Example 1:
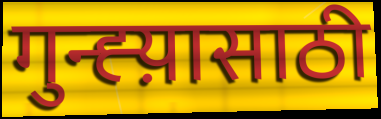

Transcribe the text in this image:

गुन्ह्य़ासाठी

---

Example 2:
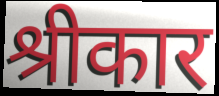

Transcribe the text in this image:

श्रीकार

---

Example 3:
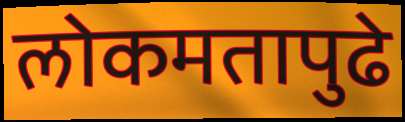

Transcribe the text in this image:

लोकमतापुढे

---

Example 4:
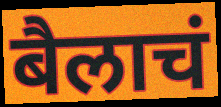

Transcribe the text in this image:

बैलाचं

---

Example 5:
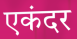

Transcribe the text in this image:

एकंदर